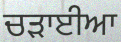
ਚੜਾਈਆ